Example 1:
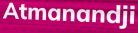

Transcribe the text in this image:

Atmanandji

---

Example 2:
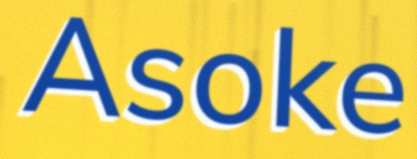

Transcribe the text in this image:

Asoke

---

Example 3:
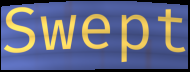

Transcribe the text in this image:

Swept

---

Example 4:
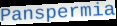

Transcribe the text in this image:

Panspermia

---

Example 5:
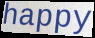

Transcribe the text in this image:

happy